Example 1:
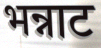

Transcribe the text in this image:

भन्नाट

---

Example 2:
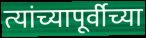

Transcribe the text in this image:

त्यांच्यापूर्वीच्या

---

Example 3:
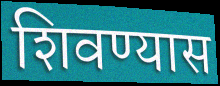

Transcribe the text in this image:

शिवण्यास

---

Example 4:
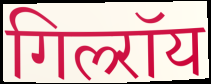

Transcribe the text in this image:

गिल्रॉय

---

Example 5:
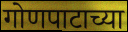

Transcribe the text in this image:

गोणपाटाच्या